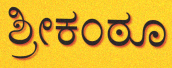
ಶ್ರೀಕಂಠೂ